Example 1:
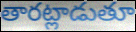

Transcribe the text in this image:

తారట్లాడుతూ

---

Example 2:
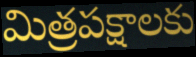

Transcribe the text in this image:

మిత్రపక్షాలకు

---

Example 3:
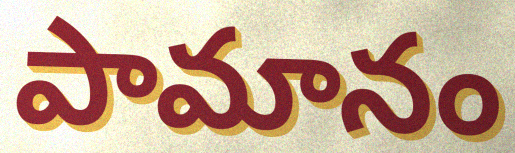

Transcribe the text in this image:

పామానం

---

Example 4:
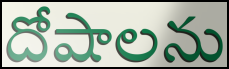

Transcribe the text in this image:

దోషాలను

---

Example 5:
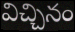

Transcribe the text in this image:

విచ్చినం